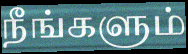
நீங்களும்